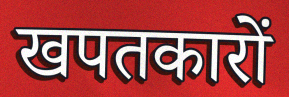
खपतकारों